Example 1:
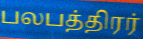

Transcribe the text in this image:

பலபத்திரர்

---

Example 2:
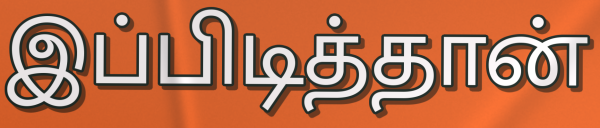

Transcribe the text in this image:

இப்பிடித்தான்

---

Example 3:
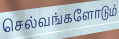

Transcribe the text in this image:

செல்வங்களோடும்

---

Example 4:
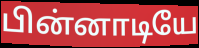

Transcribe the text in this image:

பின்னாடியே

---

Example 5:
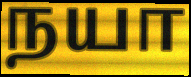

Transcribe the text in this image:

நயா